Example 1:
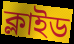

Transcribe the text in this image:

ক্লাইড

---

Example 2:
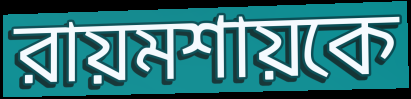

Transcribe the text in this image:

রায়মশায়কে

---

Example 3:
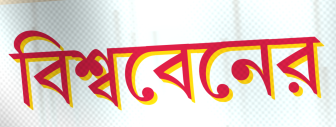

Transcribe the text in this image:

বিশ্ববেনের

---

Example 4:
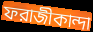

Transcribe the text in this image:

ফরাজীকান্দা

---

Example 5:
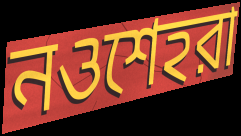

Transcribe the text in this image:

নওশেহরা